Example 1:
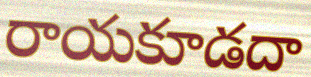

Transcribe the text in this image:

రాయకూడదా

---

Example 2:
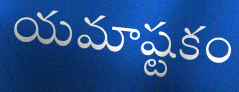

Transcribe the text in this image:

యమాష్టకం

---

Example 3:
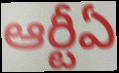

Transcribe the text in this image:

ఆర్టీఏ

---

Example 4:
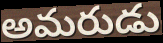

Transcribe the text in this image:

అమరుడు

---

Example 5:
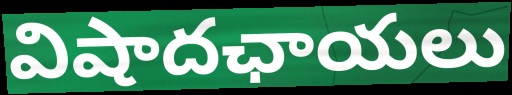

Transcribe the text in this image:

విషాదఛాయలు